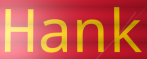
Hank